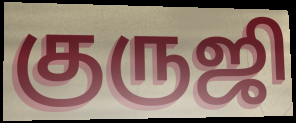
குருஜி